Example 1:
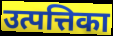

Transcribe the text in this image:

उत्पत्तिका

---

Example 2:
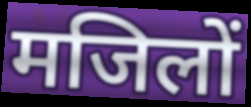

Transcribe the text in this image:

मजिलों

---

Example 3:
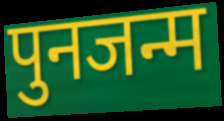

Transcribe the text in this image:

पुनजन्म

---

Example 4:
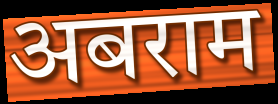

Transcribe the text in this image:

अबराम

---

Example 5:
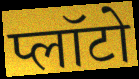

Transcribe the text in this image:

प्लॉटो